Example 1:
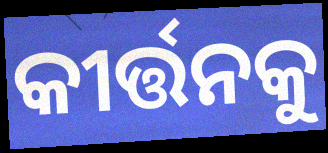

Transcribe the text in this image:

କୀର୍ତ୍ତନକୁ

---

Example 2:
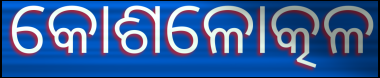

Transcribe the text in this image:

କୋଶଳୋତ୍କଳ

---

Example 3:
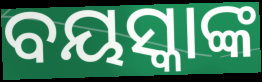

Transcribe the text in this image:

ବୟସ୍କାଙ୍କ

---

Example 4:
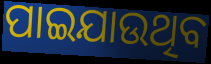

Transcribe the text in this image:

ପାଇଯାଉଥିବ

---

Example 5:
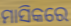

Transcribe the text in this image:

ମାସିକରେ